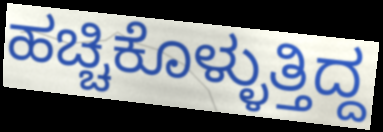
ಹಚ್ಚಿಕೊಳ್ಳುತ್ತಿದ್ದ